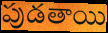
పుడతాయి